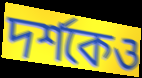
দৰ্শকেও